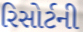
રિસોર્ટની